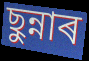
ছুন্নাৰ